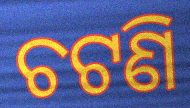
ଚଟଣି